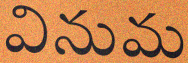
వినుమ